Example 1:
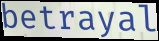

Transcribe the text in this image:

betrayal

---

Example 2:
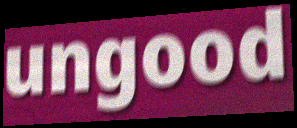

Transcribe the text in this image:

ungood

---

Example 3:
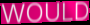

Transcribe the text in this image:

WOULD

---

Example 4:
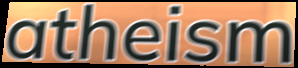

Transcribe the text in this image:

atheism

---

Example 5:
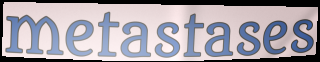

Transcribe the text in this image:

metastases